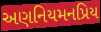
અણનિયમનપ્રિય